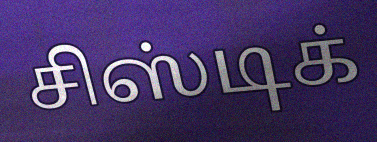
சிஸ்டிக்